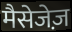
मैसेजेज़